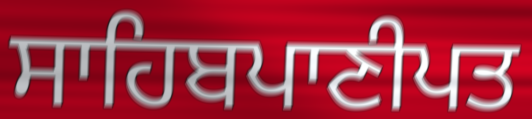
ਸਾਹਿਬਪਾਣੀਪਤ